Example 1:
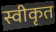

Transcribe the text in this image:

स्‍वीकृत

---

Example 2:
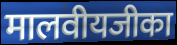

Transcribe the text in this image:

मालवीयजीका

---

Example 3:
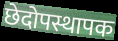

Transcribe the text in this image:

छेदोपस्थापक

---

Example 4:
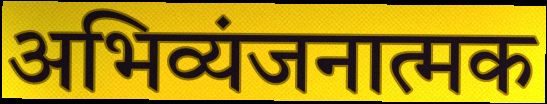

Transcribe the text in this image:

अभिव्यंजनात्मक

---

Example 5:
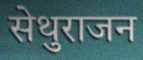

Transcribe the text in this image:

सेथुराजन